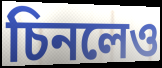
চিনলেও